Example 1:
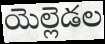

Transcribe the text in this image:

యెల్లెడల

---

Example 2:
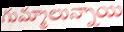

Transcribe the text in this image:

గుమ్మాలున్నాయి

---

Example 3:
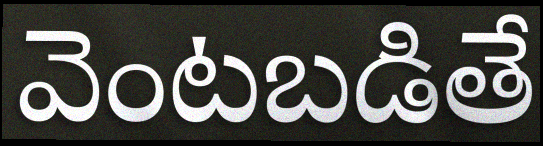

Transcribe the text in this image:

వెంటబడితే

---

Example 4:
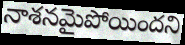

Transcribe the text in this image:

నాశనమైపోయిందని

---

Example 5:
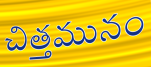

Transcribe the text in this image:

చిత్తమునం